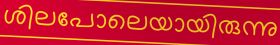
ശിലപോലെയായിരുന്നു